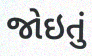
જોઇતું